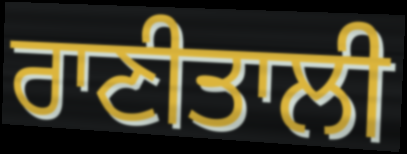
ਰਾਣੀਤਾਲੀ